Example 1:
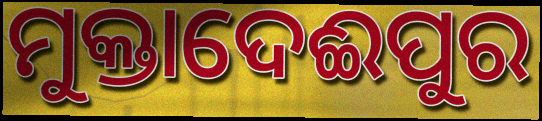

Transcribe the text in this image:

ମୁକ୍ତାଦେଈପୁର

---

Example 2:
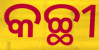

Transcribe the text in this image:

କଚ୍ଛୀ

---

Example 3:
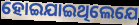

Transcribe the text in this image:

ହୋଇଯାଇଥିଲେଯେ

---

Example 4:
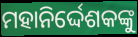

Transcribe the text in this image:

ମହାନିର୍ଦ୍ଦେଶକଙ୍କୁ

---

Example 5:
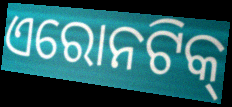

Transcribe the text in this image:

ଏରୋନଟିକ୍